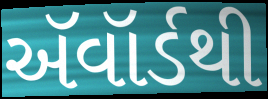
ઍવૉર્ડથી